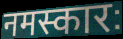
नमस्कारः